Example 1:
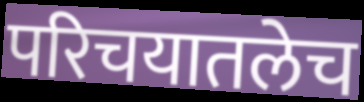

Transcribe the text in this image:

परिचयातलेच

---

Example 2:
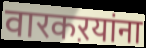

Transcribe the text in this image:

वारकऱयांना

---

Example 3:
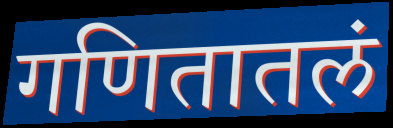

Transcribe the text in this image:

गणितातलं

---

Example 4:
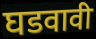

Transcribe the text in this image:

घडवावी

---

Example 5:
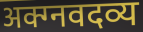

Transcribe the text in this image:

अक्ग्नवदव्य